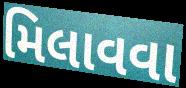
મિલાવવા